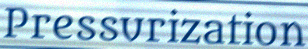
Pressurization